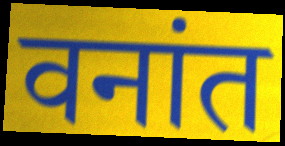
वनांत